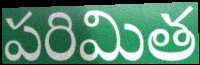
పరిమిత